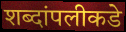
शब्दांपलीकडे